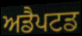
ਅਡੈਪਟਡ